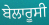
ਬੇਲਾਰੂਸੀ